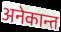
अनेकान्त